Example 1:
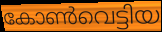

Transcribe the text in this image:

കോൺവെട്ടിയ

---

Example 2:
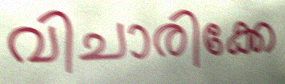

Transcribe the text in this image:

വിചാരിക്കേ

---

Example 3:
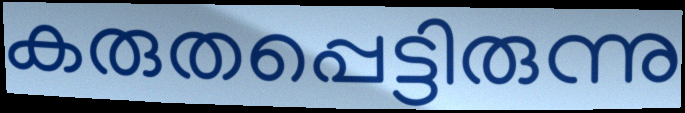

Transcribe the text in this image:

കരുതപ്പെട്ടിരുന്നു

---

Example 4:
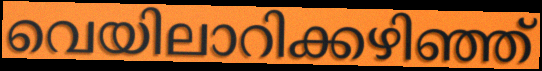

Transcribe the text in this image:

വെയിലാറിക്കഴിഞ്ഞ്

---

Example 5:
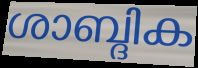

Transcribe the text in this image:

ശാബ്ദിക